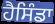
ਹੈਸਿੰਡਾ